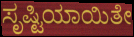
ಸೃಷ್ಟಿಯಾಯಿತೇ